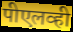
पीएलव्ही